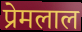
प्रेमलाल